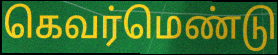
கெவர்மெண்டு